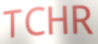
TCHR